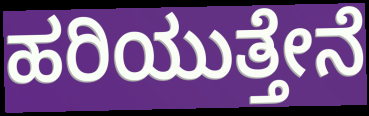
ಹರಿಯುತ್ತೇನೆ